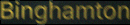
Binghamton